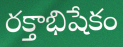
రక్తాభిషేకం